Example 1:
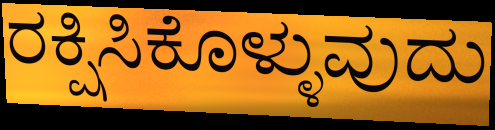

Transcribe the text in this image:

ರಕ್ಷಿಸಿಕೊಳ್ಳುವುದು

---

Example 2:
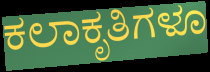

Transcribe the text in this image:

ಕಲಾಕೃತಿಗಳೂ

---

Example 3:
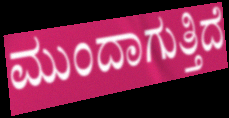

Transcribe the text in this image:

ಮುಂದಾಗುತ್ತಿದೆ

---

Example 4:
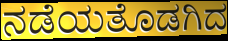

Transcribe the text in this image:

ನಡೆಯತೊಡಗಿದ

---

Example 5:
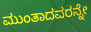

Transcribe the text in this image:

ಮುಂತಾದವರನ್ನೇ